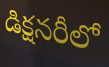
డిక్షనరీలో